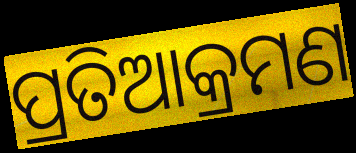
ପ୍ରତିଆକ୍ରମଣ